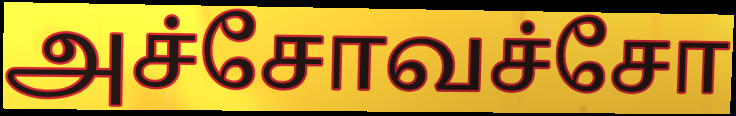
அச்சோவச்சோ